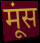
मूंस